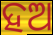
ହଅ